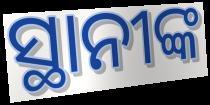
ସ୍ଥାନୀଙ୍କ